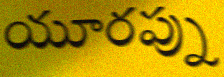
యూరప్ను